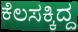
ಕೆಲಸಕ್ಕಿದ್ದ